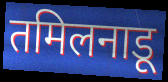
तमिलनाडू